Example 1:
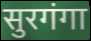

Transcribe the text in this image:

सुरगंगा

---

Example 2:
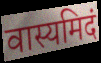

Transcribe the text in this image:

वास्यमिदं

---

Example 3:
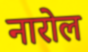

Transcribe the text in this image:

नारोल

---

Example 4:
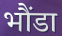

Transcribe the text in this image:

भौंडा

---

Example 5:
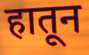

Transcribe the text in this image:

हातून